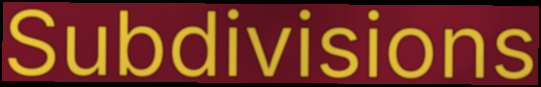
Subdivisions